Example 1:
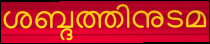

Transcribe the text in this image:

ശബ്ദത്തിനുടമ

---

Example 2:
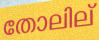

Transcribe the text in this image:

തോലില്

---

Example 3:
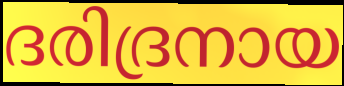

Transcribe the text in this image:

ദരിദ്രനായ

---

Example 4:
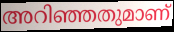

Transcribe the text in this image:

അറിഞ്ഞതുമാണ്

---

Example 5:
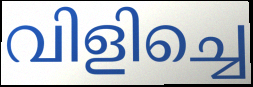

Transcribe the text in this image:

വിളിച്ചെ